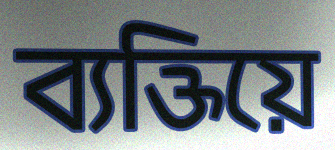
ব্যক্তিয়ে